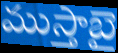
ముస్తాబై